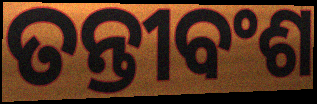
ତନ୍ତୀବଂଶ